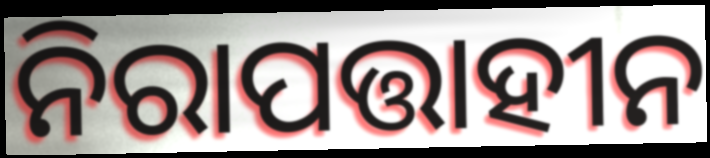
ନିରାପତ୍ତାହୀନ